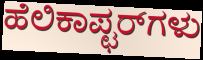
ಹೆಲಿಕಾಪ್ಟರ್‌ಗಳು